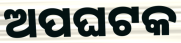
ଅପଘଟକ